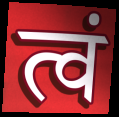
त्वं